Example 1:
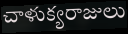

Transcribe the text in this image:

చాళుక్యరాజులు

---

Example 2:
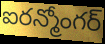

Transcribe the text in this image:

ఐరన్మోంగర్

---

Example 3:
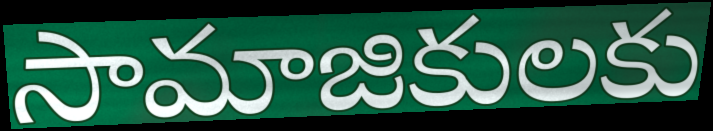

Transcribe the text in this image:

సామాజికులకు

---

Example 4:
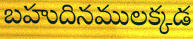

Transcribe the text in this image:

బహుదినములక్కడ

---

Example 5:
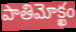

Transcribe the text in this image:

పాతిమోక్ఖం